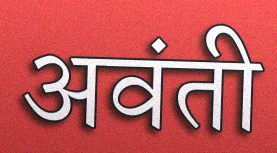
अवंती